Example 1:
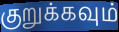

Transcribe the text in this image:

குறுக்கவும்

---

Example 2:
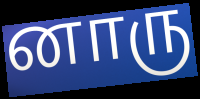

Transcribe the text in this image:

னாரு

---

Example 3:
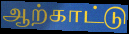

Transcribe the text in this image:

ஆற்காட்டு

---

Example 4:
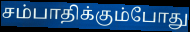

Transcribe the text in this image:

சம்பாதிக்கும்போது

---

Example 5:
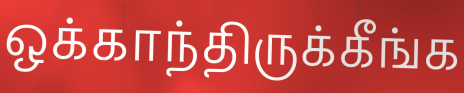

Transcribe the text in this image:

ஒக்காந்திருக்கீங்க